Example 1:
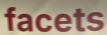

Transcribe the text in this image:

facets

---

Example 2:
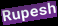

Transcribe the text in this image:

Rupesh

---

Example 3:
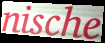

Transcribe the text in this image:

nische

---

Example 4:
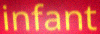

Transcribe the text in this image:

infant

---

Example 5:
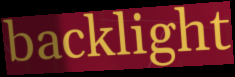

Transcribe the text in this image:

backlight